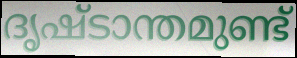
ദൃഷ്ടാന്തമുണ്ട്